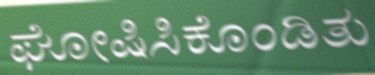
ಘೋಷಿಸಿಕೊಂಡಿತು